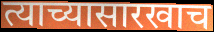
त्याच्यासारखाच